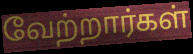
வேற்றார்கள்